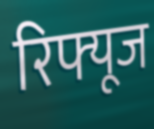
रिफ्यूज